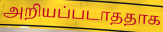
அறியப்படாததாக